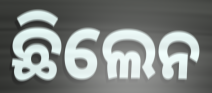
ଛିଲେନ